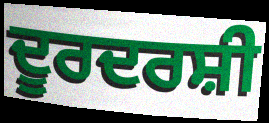
ਦੂਰਦਰਸ਼ੀ